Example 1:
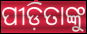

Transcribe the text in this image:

ପୀଡ଼ିତାଙ୍କୁ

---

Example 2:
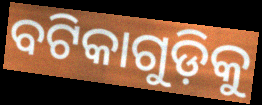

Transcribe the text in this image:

ବଟିକାଗୁଡ଼ିକୁ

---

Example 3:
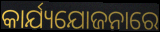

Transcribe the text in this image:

କାର୍ଯ୍ୟଯୋଜନାରେ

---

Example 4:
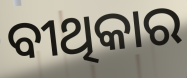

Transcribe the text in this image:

ବୀଥିକାର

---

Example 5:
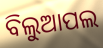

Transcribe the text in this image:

ବିଲୁଆପଲ